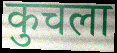
कुचला